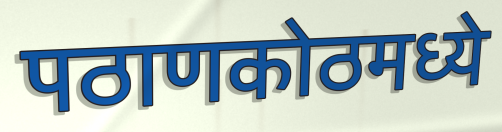
पठाणकोठमध्ये